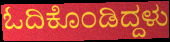
ಓದಿಕೊಂಡಿದ್ದಳು